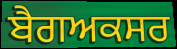
ਬੈਗਅਕਸਰ